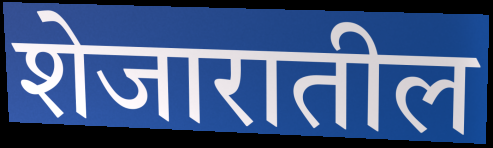
शेजारातील